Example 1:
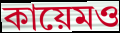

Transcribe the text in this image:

কায়েমও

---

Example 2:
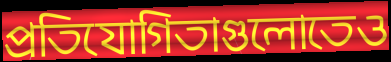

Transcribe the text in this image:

প্রতিযোগিতাগুলোতেও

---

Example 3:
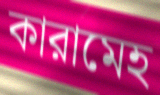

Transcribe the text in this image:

কারামেহ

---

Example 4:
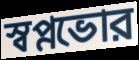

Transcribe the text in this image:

স্বপ্নভোর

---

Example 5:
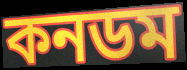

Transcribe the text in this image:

কনডম